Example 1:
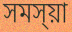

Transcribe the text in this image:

সমস্য়া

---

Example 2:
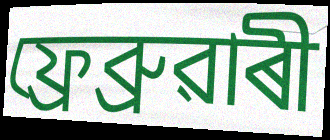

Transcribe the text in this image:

ফ্ৰেব্ৰুৱাৰী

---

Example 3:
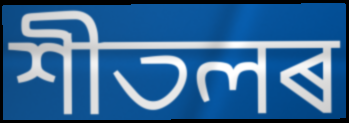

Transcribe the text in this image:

শীতলৰ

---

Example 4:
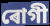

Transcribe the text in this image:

ৰোগী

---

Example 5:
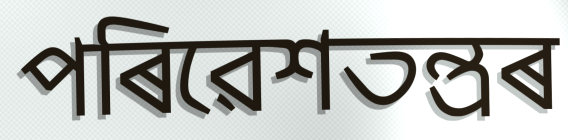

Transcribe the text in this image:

পৰিৱেশতন্ত্ৰৰ